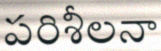
పరిశీలనా